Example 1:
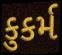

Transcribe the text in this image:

કુકર્મ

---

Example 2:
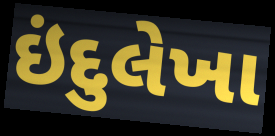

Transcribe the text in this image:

ઇંદુલેખા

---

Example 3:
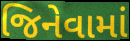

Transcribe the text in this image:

જિનેવામાં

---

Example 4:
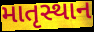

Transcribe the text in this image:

માતૃસ્થાન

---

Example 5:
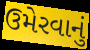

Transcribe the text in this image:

ઉમેરવાનું